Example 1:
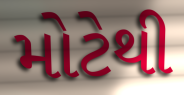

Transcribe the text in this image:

મોટેથી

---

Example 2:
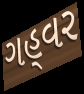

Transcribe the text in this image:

ગહ્‌વર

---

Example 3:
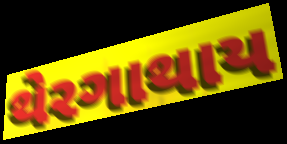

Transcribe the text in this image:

થેરગાથાય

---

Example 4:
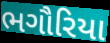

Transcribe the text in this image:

ભગૌરિયા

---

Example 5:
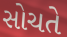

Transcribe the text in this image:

સોચતે